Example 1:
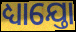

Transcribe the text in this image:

ଧ୍ୟାଯ୍ତୋ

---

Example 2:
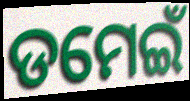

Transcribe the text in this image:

ଡମେଇଁ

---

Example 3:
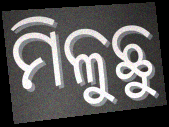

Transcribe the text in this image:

ମିଳୁଛୁ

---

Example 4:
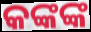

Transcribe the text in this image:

କଙ୍କଙ୍କ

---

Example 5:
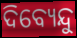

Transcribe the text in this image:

ଦିବ୍ୟେନ୍ଦୁ